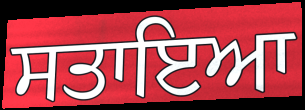
ਸਤਾਇਆ